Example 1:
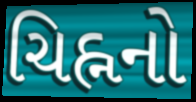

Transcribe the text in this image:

ચિહ્નનો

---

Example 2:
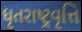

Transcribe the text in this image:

ધૃતરાષ્ટ્રવૃત્તિ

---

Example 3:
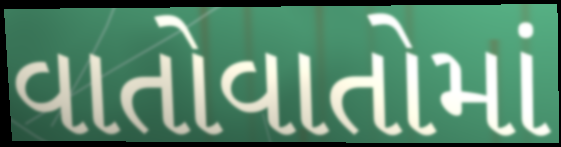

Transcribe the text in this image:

વાતોવાતોમાં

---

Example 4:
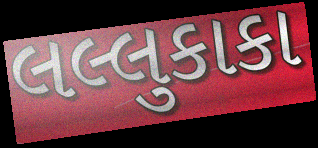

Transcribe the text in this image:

લલ્લુકાકા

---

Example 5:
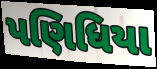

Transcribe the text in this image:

પણિધિયા